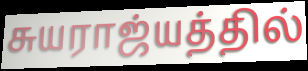
சுயராஜ்யத்தில்